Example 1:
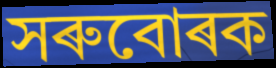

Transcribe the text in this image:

সৰুবোৰক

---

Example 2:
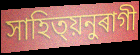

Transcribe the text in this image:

সাহিত্য়নুৰাগী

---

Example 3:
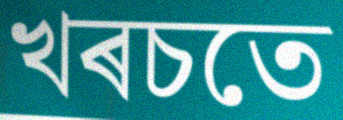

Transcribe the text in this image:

খৰচতে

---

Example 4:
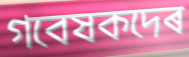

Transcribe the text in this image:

গবেষকদেৰ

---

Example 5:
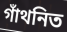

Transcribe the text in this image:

গাঁথনিত